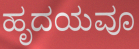
ಹೃದಯವೂ